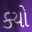
ક્યો